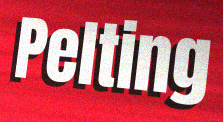
Pelting